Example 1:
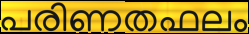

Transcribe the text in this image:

പരിണതഫലം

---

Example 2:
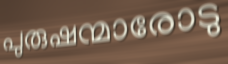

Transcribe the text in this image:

പുരുഷന്മാരോടു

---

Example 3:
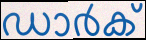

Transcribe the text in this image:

ഡാർക്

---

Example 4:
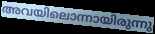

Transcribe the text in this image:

അവയിലൊന്നായിരുന്നു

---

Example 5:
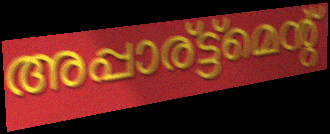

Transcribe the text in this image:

അപ്പാര്ട്ട്മെന്റ്